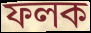
ফলক